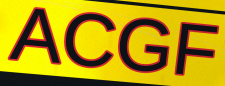
ACGF